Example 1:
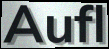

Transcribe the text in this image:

Aufl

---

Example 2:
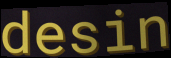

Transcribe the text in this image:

desin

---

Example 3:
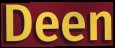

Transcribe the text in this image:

Deen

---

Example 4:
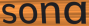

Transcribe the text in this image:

sona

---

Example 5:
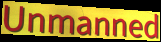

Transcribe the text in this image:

Unmanned